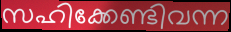
സഹിക്കേണ്ടിവന്ന